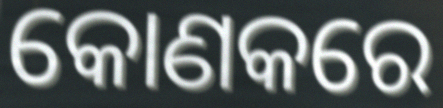
କୋଣକରେ